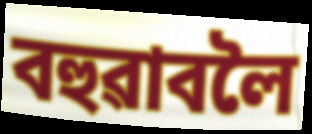
বহুৱাবলৈ